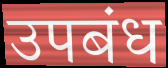
उपबंध